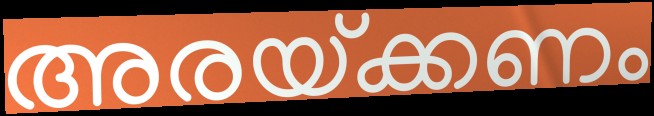
അരയ്‌ക്കണം